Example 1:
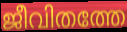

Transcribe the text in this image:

ജീവിതത്തേ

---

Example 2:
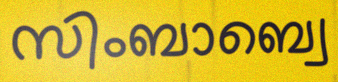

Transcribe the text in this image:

സിംബാബ്വെ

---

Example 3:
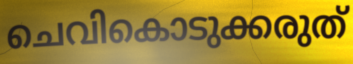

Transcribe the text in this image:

ചെവികൊടുക്കരുത്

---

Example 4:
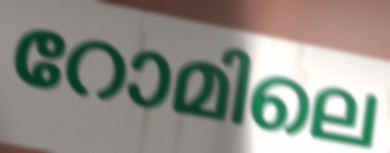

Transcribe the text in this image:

റോമിലെ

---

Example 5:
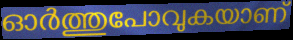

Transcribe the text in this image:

ഓർത്തുപോവുകയാണ്